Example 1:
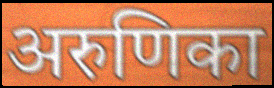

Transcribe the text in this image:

अरुणिका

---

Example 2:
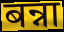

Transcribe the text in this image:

बन्ना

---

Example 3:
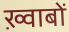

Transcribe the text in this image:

ख़्वाबों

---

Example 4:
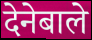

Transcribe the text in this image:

देनेबाले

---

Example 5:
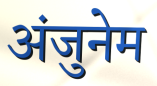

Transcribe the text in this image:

अंजुनेम